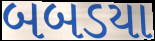
બબડયા